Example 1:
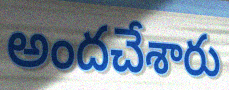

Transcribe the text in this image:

అందచేశారు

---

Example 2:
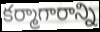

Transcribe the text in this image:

కర్మాగారాన్ని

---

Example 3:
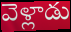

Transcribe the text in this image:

వెళ్లాడు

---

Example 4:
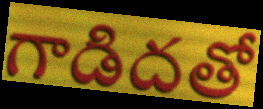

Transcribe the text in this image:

గాడిదతో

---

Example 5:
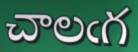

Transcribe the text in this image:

చాలఁగ